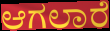
ಆಗಲಾರೆ